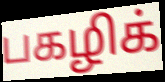
பகழிக்